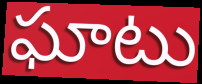
ఘాటు